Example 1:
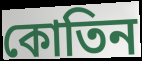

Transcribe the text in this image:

কোতিন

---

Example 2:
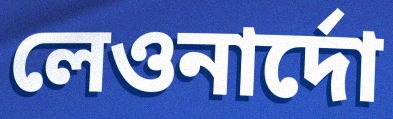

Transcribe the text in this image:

লেওনার্দো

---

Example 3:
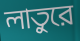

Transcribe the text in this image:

লাতুরে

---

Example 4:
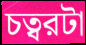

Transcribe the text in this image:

চত্বরটা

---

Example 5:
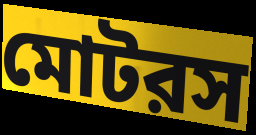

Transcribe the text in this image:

মোটরস